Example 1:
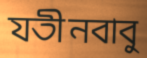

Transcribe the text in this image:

যতীনবাবু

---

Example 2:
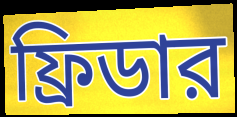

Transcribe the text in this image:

ফ্রিডার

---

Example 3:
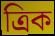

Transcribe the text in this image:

ত্রিক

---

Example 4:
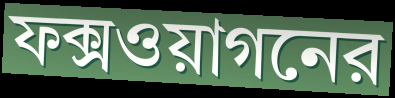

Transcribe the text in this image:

ফক্সওয়াগনের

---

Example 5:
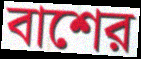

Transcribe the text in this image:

বাশের